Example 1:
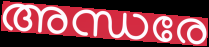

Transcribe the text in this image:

അന്ധരേ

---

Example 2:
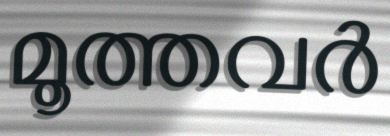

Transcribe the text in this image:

മൂത്തവർ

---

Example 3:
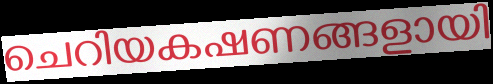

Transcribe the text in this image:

ചെറിയകഷണങ്ങളായി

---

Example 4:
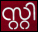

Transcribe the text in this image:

സ്റ്റി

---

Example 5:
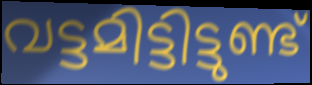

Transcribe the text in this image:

വട്ടമിട്ടിട്ടുണ്ട്